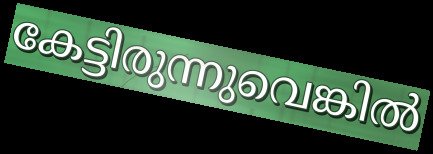
കേട്ടിരുന്നുവെങ്കിൽ